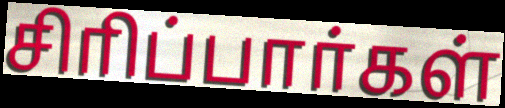
சிரிப்பார்கள்